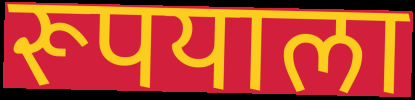
रूपयाला